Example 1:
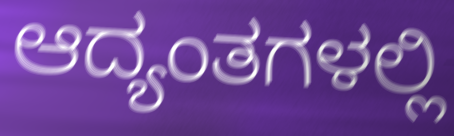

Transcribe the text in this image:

ಆದ್ಯಂತಗಳಲ್ಲಿ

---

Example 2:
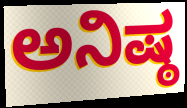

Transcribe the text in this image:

ಅನಿಷ್ಠ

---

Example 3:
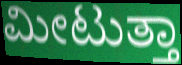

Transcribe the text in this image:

ಮೀಟುತ್ತಾ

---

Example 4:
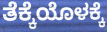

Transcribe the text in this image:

ತೆಕ್ಕೆಯೊಳಕ್ಕೆ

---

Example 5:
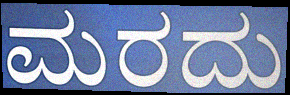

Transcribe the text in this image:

ಮರದು